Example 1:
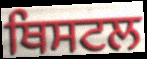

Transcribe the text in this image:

ਥਿਸਟਲ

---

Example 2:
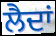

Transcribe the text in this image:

ਲੈਦਾਂ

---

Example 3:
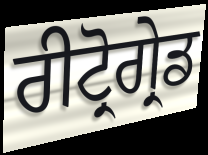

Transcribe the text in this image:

ਰੀਟ੍ਰੋਗ੍ਰੇਡ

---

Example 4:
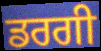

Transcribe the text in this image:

ਡਰਗੀ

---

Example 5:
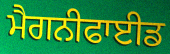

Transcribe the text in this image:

ਮੈਗਨੀਫਾਈਡ